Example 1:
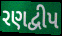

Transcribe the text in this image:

રણદ્વીપ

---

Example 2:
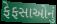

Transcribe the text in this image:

ફેફસાઓનું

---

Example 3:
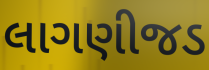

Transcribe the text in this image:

લાગણીજડ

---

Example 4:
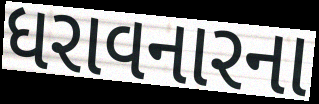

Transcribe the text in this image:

ધરાવનારના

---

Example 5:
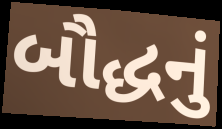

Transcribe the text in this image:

બૌદ્ધનું